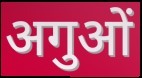
अगुओं